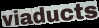
viaducts